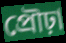
প্রৌঢ়া